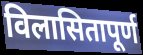
विलासितापूर्ण